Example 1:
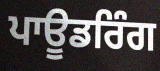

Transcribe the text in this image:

ਪਾਊਡਰਿੰਗ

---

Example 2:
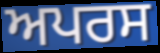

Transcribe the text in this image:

ਅਪਰਸ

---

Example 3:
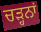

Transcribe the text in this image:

ਚੜ੍ਹਨਾਂ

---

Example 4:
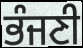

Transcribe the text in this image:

ਭੰਜਣੀ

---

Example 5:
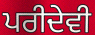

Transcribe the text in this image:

ਪਰੀਦੇਵੀ